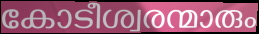
കോടീശ്വരന്മാരും